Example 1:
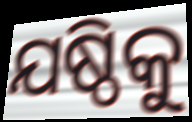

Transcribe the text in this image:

ଯଷ୍ଠିକୁ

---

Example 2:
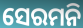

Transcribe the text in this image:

ସେରମନି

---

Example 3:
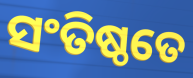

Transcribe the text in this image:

ସଂତିଷ୍ଠତେ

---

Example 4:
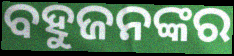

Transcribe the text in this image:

ବହୁଜନଙ୍କର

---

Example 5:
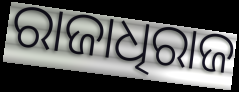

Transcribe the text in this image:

ରାଜାଧିରାଜ